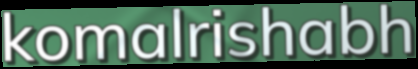
komalrishabh